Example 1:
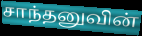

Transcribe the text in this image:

சாந்தனுவின்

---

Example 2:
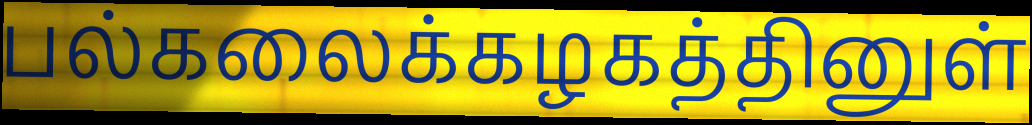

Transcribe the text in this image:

பல்கலைக்கழகத்தினுள்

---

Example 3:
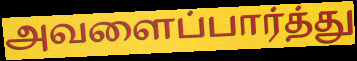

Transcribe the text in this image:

அவளைப்பார்த்து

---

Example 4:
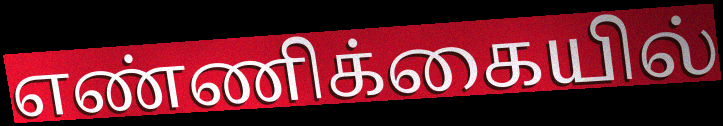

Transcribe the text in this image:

எண்ணிக்கையில்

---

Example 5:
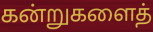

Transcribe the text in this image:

கன்றுகளைத்